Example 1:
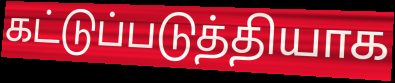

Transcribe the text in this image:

கட்டுப்படுத்தியாக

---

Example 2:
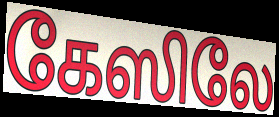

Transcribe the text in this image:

கேஸிலே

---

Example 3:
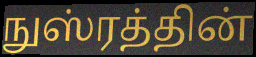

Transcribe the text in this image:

நுஸ்ரத்தின்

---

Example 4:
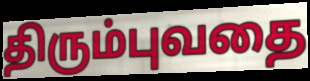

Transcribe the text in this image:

திரும்புவதை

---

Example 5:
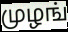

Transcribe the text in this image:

முழங்